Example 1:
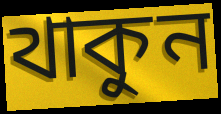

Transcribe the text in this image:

থাকুন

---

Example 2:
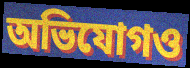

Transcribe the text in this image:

অভিযোগও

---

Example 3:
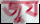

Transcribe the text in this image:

জুয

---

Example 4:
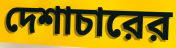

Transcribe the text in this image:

দেশাচারের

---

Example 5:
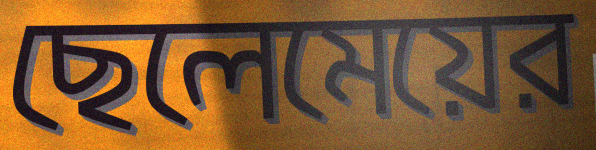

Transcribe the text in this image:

ছেলেমেয়ের